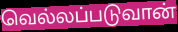
வெல்லப்படுவான்